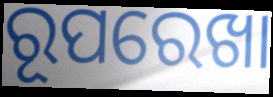
ରୂପରେଖା